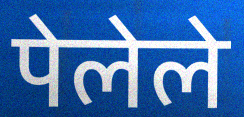
पेलेले